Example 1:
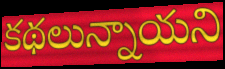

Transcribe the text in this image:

కథలున్నాయని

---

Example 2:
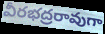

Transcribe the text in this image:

వీరభద్రరావుగా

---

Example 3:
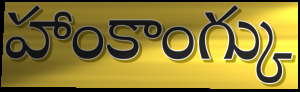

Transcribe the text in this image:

హాంకాంగ్కు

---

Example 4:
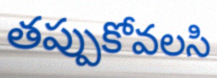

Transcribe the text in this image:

తప్పుకోవలసి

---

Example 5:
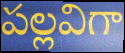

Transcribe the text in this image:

పల్లవిగా